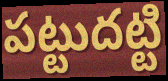
పట్టుదట్టి